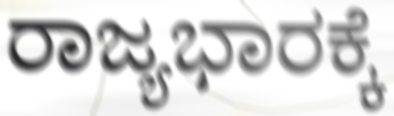
ರಾಜ್ಯಭಾರಕ್ಕೆ